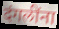
दंगलींना